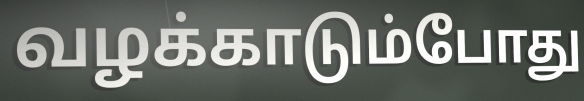
வழக்காடும்போது